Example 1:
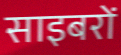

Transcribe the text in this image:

साइबरों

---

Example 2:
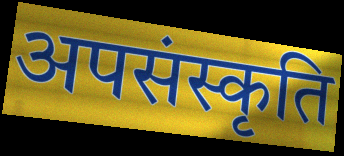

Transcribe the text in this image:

अपसंस्कृति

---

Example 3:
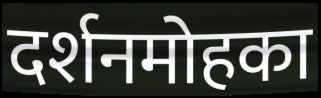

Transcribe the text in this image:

दर्शनमोहका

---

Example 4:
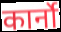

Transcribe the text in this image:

कार्नो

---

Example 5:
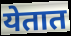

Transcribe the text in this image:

येतात